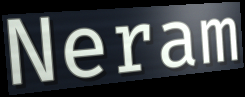
Neram